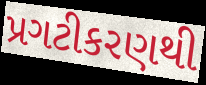
પ્રગટીકરણથી